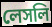
লেসলি